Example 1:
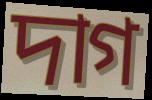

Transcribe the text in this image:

দাগ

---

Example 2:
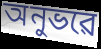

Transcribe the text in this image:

অনুভৱে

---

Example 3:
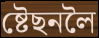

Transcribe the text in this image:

ষ্টেছনলৈ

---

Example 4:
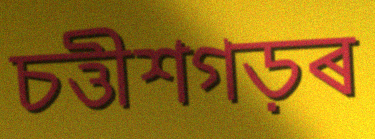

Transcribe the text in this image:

চত্তীশগড়ৰ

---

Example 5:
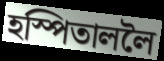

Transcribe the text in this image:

হস্পিতাললৈ